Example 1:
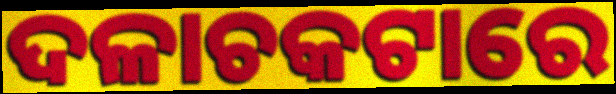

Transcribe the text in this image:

ଦଳାଚକଟାରେ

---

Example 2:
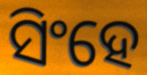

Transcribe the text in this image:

ସିଂହେ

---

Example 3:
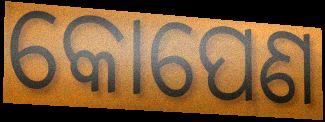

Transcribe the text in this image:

କୋପେଣ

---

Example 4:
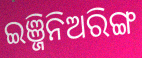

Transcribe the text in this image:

ଇଞ୍ଜିନିଅରିଙ୍ଗ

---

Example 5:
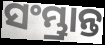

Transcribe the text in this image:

ସଂମ୍ଭ୍ରାନ୍ତ